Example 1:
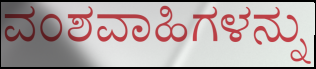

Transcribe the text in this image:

ವಂಶವಾಹಿಗಳನ್ನು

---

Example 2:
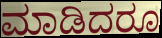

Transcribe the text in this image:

ಮಾಡಿದರೂ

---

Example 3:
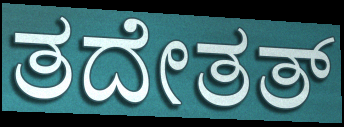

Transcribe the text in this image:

ತದೇತತ್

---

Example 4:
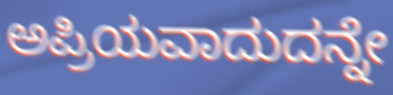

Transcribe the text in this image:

ಅಪ್ರಿಯವಾದುದನ್ನೇ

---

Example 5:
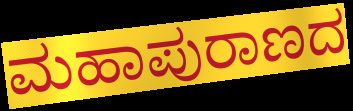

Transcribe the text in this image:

ಮಹಾಪುರಾಣದ